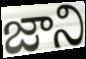
జాని